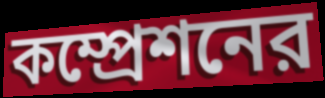
কম্প্রেশনের